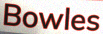
Bowles